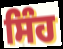
ਸਿੰਹ